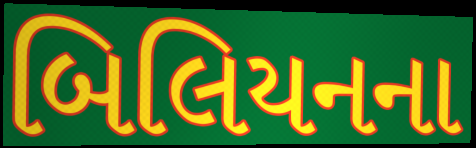
બિલિયનના